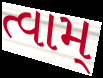
ત્વામ્